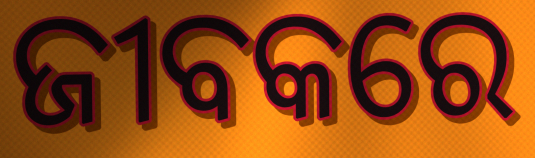
ଜୀବକରେ